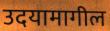
उदयामागील